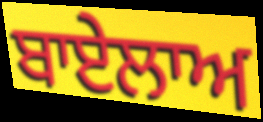
ਬਾਏਲਾਅ